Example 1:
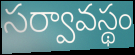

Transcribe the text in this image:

సర్వావస్థం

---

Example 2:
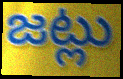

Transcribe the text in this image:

జట్లు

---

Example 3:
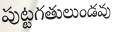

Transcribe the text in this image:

పుట్టగతులుండవు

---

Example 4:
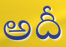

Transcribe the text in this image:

అదీ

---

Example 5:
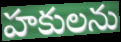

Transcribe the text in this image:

హకులను